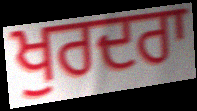
ਖੁਰਦਰਾ